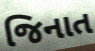
જિનાત